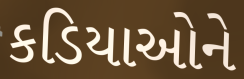
કડિયાઓને